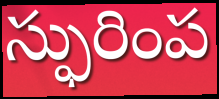
స్ఫురింప